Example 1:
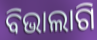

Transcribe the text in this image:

ବିଭାଲାଗି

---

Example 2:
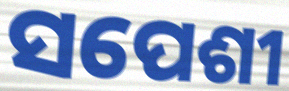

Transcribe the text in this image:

ସପେଶୀ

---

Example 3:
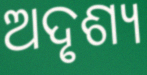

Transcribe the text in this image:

ଅଦୃଶ୍ୟ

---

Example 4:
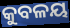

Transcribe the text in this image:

କୁବଳୟ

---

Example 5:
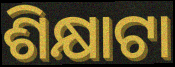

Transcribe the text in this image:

ଶିକ୍ଷାଟା